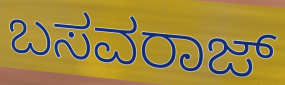
ಬಸವರಾಜ್